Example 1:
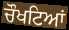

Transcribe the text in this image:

ਚੌਖਟਿਆਂ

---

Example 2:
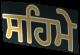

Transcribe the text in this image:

ਸਹਿਮੇ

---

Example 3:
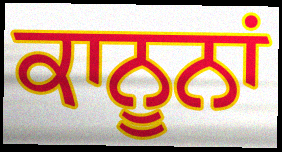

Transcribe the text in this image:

ਕਾਨੂਨਾਂ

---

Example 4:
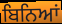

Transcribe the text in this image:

ਬਿਨਿਆਂ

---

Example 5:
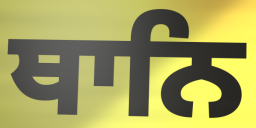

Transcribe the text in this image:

ਥਾਨਿ